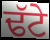
ਢੱਟੇ